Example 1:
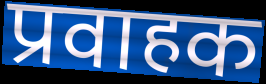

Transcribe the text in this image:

प्रवाहक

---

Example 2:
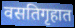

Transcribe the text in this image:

वसतिगृहात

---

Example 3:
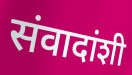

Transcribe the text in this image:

संवादांशी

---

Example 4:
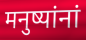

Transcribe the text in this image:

मनुष्यांनां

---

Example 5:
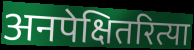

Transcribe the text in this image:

अनपेक्षितरित्या